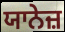
ਯਾਨੇਜ਼